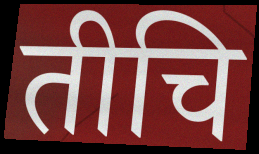
तीचि